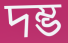
দম্ভ